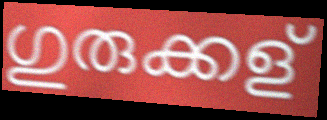
ഗുരുക്കള്